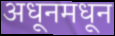
अधूनमधून